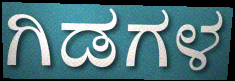
ಗಿಡಗಳ